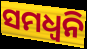
ସମଧ୍ୱନି